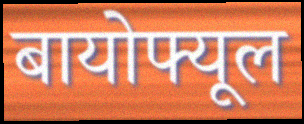
बायोफ्यूल